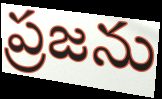
ప్రజను